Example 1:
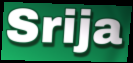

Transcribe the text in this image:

Srija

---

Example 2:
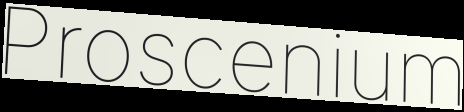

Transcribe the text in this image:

Proscenium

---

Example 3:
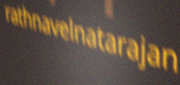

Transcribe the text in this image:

rathnavelnatarajan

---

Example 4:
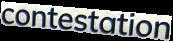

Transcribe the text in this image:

contestation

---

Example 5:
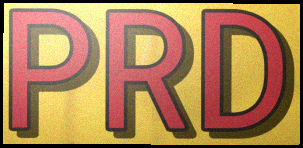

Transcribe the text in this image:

PRD